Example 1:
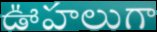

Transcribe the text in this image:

ఊహలుగా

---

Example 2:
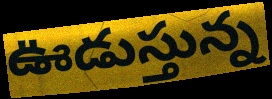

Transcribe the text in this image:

ఊడుస్తున్న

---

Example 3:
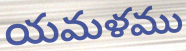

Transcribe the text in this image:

యమళము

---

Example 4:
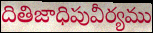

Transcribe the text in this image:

దితిజాధిపువీర్యము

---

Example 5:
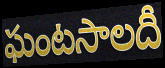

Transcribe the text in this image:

ఘంటసాలదీ